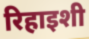
रिहाइशी